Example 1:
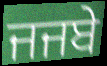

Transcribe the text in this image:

ਜਜਬੇ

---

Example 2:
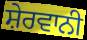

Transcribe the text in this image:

ਸ਼ੇਰਵਾਨੀ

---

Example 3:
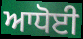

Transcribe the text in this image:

ਆਧੋਈ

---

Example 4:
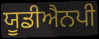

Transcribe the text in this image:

ਯੂਡੀਐਨਪੀ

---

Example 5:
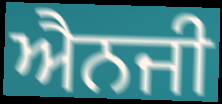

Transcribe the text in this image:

ਐਨਜੀ